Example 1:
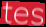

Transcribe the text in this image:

tes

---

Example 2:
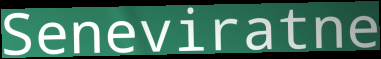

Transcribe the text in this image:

Seneviratne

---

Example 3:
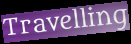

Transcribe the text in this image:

Travelling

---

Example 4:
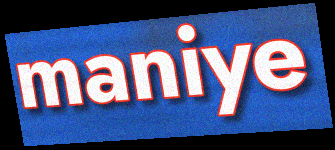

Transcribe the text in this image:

maniye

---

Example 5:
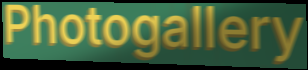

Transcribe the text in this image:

Photogallery